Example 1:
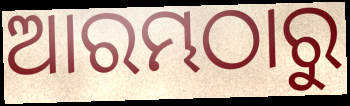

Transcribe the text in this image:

ଆରମ୍ଭଠାରୁ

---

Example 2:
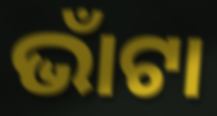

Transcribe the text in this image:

ଭାଁଟା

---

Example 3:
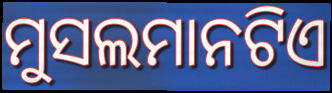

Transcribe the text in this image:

ମୁସଲମାନଟିଏ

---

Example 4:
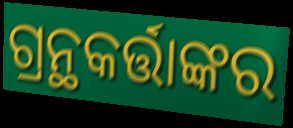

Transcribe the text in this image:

ଗ୍ରନ୍ଥକର୍ତ୍ତାଙ୍କର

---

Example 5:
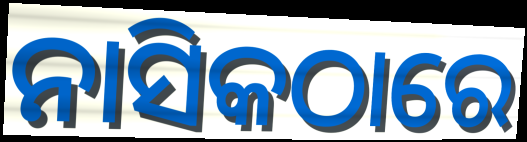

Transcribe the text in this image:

ନାସିକଠାରେ